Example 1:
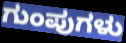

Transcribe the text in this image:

ಗುಂಪುಗಳು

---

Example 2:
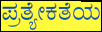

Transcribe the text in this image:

ಪ್ರತ್ಯೇಕತೆಯ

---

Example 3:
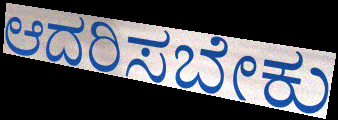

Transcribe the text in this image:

ಆದರಿಸಬೇಕು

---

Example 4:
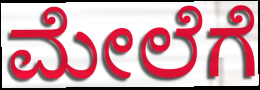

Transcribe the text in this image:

ಮೇಲೆಗೆ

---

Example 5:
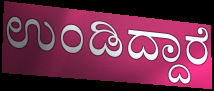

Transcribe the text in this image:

ಉಂಡಿದ್ದಾರೆ